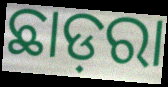
ଛାଡ଼ରା